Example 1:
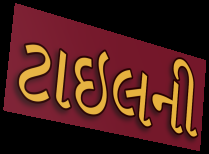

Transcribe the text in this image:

ટાઇલની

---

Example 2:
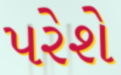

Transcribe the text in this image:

પરેશે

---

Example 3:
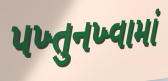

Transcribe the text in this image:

પખ્તુનખ્વામાં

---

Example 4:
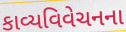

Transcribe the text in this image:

કાવ્યવિવેચનના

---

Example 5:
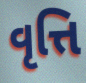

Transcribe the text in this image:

વૃત્તિ